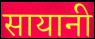
सायानी